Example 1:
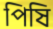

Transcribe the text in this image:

পিষি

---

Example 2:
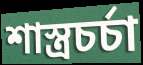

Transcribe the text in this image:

শাস্ত্রচর্চা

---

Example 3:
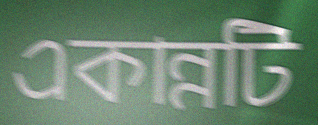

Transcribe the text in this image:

একান্নটি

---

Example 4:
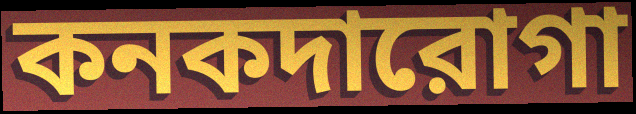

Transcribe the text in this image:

কনকদারোগা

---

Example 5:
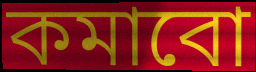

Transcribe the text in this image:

কমাবো